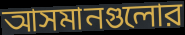
আসমানগুলোর